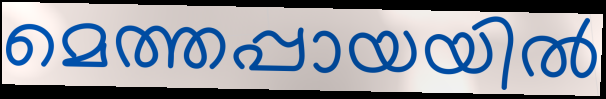
മെത്തപ്പായയിൽ